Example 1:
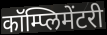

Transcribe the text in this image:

कॉम्प्लिमेंटरी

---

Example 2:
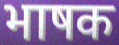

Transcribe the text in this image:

भाषक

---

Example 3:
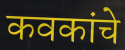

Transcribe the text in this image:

कवकांचे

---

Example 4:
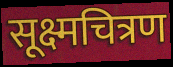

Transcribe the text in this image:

सूक्ष्मचित्रण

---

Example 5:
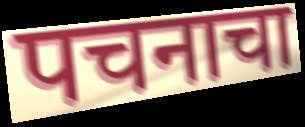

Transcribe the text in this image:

पचनाचा